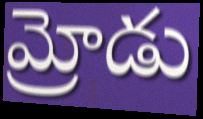
మ్రోడు